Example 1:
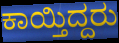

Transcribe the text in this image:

ಕಾಯ್ತಿದ್ದರು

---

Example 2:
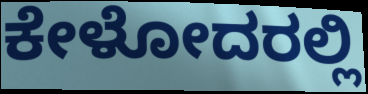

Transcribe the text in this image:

ಕೇಳೋದರಲ್ಲಿ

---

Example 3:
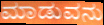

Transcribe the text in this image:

ಮಾಡುವನು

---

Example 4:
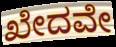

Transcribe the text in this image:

ಖೇದವೇ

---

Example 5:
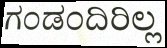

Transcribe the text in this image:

ಗಂಡಂದಿರಿಲ್ಲ